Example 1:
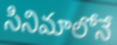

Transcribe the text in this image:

సినిమాలోనే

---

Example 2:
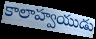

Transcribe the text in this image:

కాలాహ్వయుడు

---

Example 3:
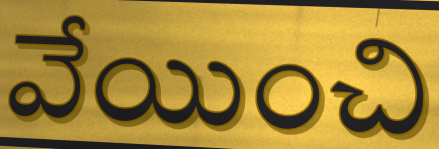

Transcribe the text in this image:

వేయించి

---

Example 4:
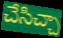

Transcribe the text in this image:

చేసిచ్చా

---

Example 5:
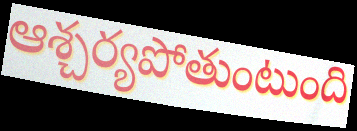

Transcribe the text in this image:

ఆశ్చర్యపోతుంటుంది